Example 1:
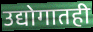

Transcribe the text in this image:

उद्योगातही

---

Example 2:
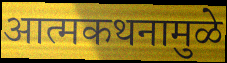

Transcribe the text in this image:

आत्मकथनामुळे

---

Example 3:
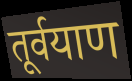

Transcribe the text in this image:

तूर्वयाण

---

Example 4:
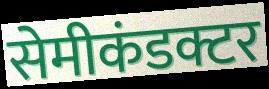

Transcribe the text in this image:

सेमीकंडक्टर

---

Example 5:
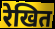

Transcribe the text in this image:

रेखित